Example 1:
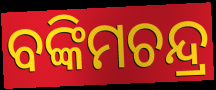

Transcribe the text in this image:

ବଙ୍କିମଚନ୍ଦ୍ର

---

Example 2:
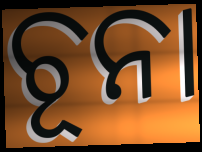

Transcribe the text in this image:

ଚୂନା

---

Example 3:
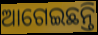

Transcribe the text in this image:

ଆଗେଇଛନ୍ତି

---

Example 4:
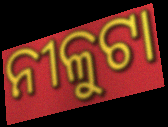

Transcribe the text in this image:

ନୀଳୁଟା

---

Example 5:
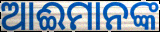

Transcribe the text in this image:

ଆଈମାନଙ୍କ